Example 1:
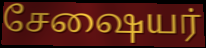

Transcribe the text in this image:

சேஷையர்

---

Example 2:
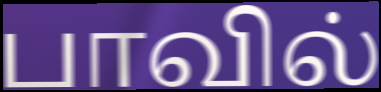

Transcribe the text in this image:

பாவில்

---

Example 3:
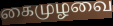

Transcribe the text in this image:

கைமுழவை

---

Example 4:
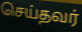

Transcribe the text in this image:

செய்தவர்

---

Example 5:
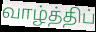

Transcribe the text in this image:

வாழ்த்திப்